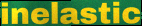
inelastic